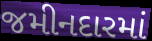
જમીનદારમાં